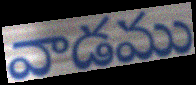
వాడము